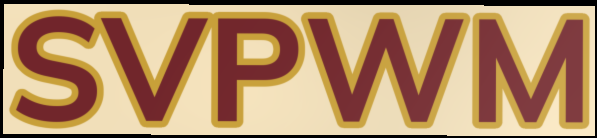
SVPWM